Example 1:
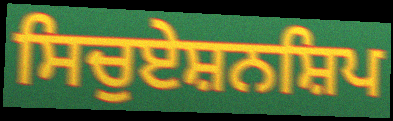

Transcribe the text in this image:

ਸਿਚੁਏਸ਼ਨਸ਼ਿਪ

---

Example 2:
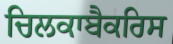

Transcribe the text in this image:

ਚਿਲਕਾਬੈਕਰਿਸ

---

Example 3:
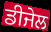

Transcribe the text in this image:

ਡੀਜੇਲ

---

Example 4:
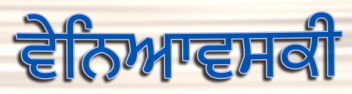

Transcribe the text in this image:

ਵੇਨਿਆਵਸਕੀ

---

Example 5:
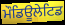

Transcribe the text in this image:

ਮੌਡਿਊਲੇਟਿਡ